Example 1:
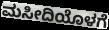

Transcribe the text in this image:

ಮಸೀದಿಯೊಳಗೆ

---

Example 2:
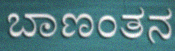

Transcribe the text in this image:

ಬಾಣಂತನ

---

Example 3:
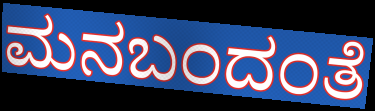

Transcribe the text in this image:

ಮನಬಂದಂತೆ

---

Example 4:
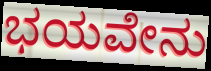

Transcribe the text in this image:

ಭಯವೇನು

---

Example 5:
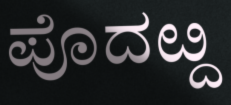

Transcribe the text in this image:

ಪೊದೞ್ದ